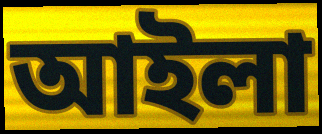
আইলা